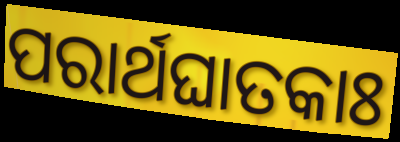
ପରାର୍ଥଘାତକାଃ